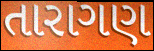
તારાગણ